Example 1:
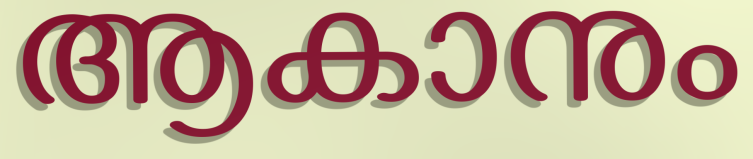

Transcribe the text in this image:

ആകാനും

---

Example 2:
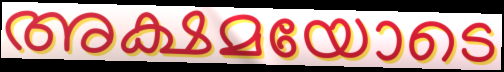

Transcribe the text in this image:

അക്ഷമയോടെ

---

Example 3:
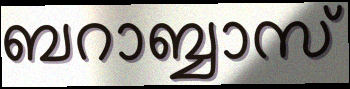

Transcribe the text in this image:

ബറാബ്ബാസ്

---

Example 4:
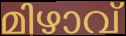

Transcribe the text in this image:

മിഴാവ്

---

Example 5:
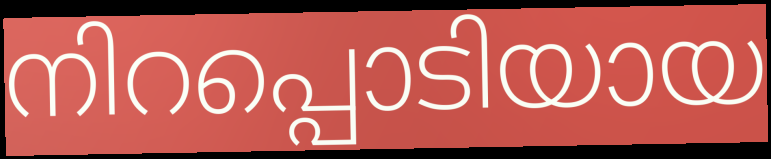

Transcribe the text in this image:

നിറപ്പൊടിയായ